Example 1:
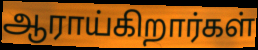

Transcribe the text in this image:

ஆராய்கிறார்கள்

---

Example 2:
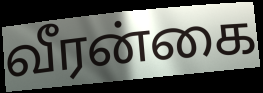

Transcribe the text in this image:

வீரன்கை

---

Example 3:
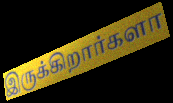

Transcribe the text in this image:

இருக்கிறார்களா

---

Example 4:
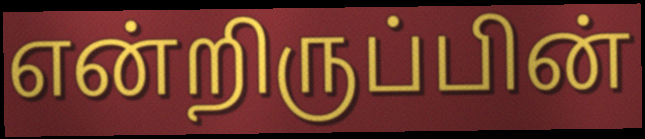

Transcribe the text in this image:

என்றிருப்பின்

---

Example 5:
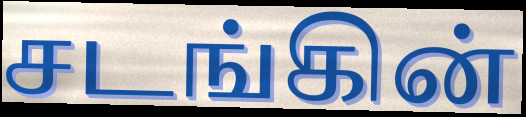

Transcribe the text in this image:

சடங்கின்